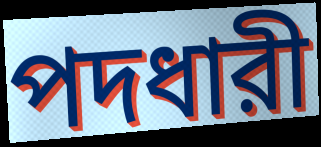
পদধারী